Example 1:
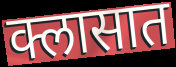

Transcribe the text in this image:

क्लासात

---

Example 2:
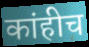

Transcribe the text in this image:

कांहीच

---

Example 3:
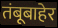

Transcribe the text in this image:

तंबूबाहेर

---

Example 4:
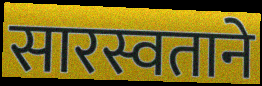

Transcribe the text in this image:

सारस्वताने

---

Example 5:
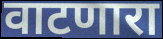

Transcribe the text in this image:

वाटणारा